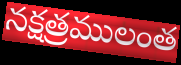
నక్షత్రములంత